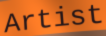
Artist